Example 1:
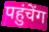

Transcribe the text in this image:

पहुंचेंग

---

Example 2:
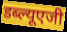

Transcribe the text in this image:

डब्ल्यूएजी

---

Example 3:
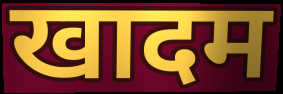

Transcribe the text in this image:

खादम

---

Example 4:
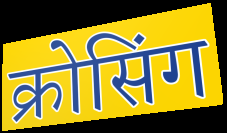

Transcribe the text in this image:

क्रोसिंग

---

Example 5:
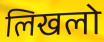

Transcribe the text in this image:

लिखलो